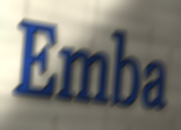
Emba